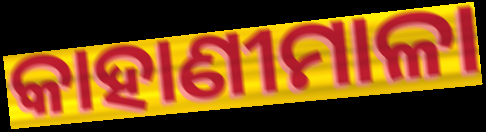
କାହାଣୀମାଳା